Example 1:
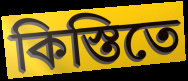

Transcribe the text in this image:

কিস্তিতে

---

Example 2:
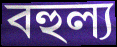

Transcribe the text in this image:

বহুল্য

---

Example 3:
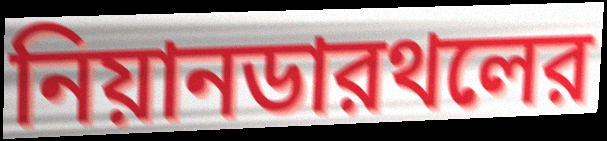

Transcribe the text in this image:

নিয়ানডারথলের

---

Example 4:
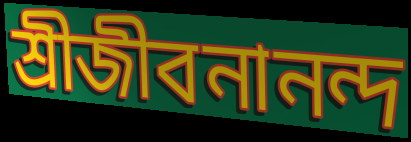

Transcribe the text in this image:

শ্রীজীবনানন্দ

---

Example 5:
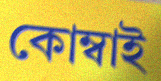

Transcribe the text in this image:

কোম্বাই